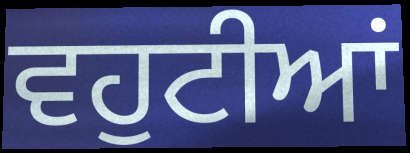
ਵਹੁਟੀਆਂ